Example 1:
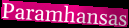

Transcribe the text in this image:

Paramhansas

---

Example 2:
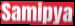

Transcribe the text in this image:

Samipya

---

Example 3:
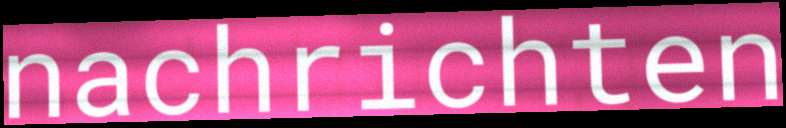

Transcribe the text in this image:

nachrichten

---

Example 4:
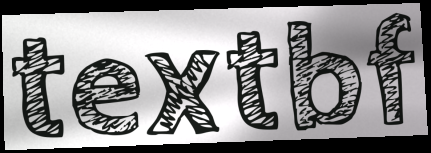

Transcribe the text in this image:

textbf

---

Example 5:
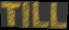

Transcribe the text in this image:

TILL